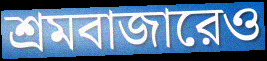
শ্রমবাজারেও